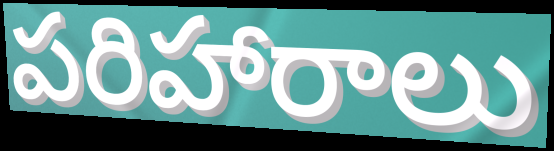
పరిహారాలు